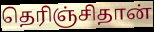
தெரிஞ்சிதான்